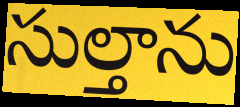
సుల్తాను